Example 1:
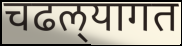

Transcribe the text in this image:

चढल्यागत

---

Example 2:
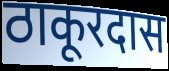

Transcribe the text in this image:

ठाकूरदास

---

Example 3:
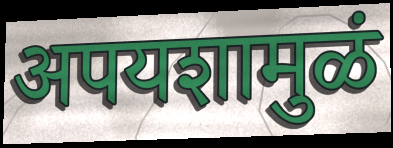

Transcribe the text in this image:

अपयशामुळं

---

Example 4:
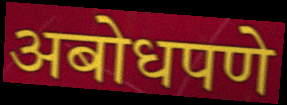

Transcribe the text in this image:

अबोधपणे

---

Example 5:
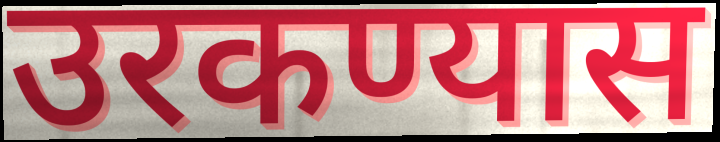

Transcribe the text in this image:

उरकण्यास